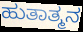
ಹುತಾತ್ಮನ